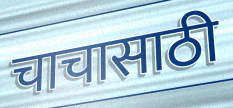
चाचासाठी